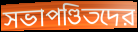
সভাপণ্ডিতদের